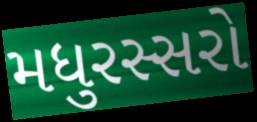
મધુરસ્સરો